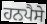
ਹਨਪੈਸੇ